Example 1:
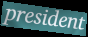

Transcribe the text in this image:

president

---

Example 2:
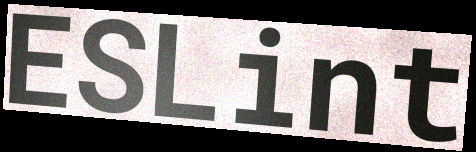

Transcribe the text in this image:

ESLint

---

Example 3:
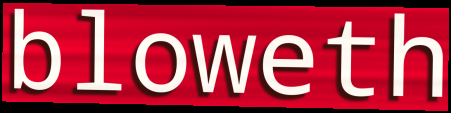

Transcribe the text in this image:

bloweth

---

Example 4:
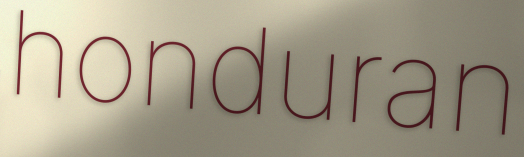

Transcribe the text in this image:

honduran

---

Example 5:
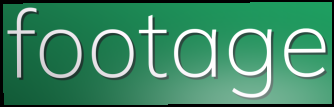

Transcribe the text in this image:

footage